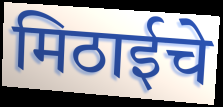
मिठाईचे